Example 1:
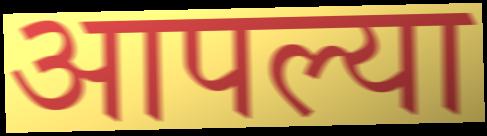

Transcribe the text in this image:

आपल्या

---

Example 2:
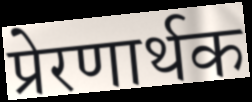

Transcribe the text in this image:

प्रेरणार्थक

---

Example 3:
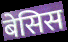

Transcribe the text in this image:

बेसिस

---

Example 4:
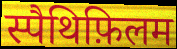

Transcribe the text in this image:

स्पैथिफ़िलम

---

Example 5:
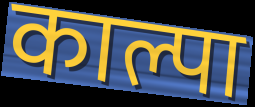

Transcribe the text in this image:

काल्पा